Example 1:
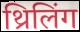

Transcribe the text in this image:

थ्रिलिंग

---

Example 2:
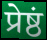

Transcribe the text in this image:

प्रेष्ठं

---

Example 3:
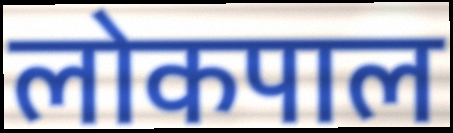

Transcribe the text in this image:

लोकपाल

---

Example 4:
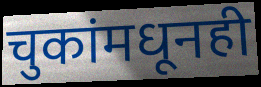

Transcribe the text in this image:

चुकांमधूनही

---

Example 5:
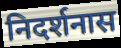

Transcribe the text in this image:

निदर्शनास